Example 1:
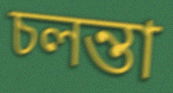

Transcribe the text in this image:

চলন্তা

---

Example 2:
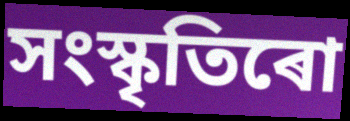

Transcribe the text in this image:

সংস্কৃতিৰো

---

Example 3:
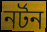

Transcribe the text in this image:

নৰ্টন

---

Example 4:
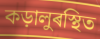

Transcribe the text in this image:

কড়ালুৰস্থিত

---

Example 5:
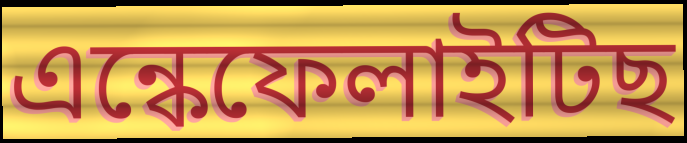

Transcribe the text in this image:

এন্কেফেলাইটিছ